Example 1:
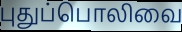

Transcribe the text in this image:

புதுப்பொலிவை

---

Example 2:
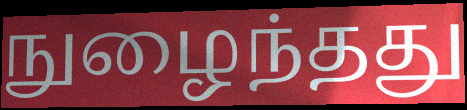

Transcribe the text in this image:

நுழைந்தது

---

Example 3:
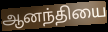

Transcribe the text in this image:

ஆனந்தியை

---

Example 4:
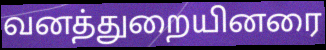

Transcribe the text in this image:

வனத்துறையினரை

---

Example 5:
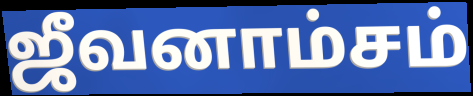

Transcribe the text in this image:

ஜீவனாம்சம்